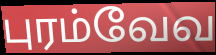
புரம்வேவ